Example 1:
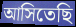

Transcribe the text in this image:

আসিতেছি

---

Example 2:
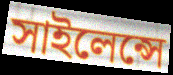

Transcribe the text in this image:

সাইলেন্সে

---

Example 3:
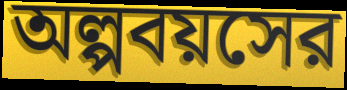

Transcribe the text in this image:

অল্পবয়সের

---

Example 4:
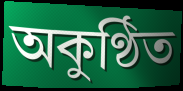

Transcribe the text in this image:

অকুণ্ঠিত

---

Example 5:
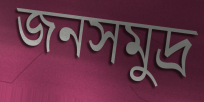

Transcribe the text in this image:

জনসমুদ্র